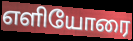
எளியோரை